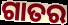
ଗାତର